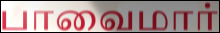
பாவைமார்